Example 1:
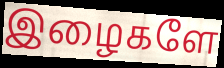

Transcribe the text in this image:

இழைகளே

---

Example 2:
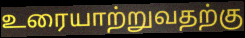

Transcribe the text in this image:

உரையாற்றுவதற்கு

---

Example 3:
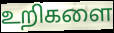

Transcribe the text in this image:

உறிகளை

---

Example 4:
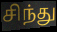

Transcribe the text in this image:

சிந்து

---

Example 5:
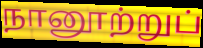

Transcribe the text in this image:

நானூற்றுப்